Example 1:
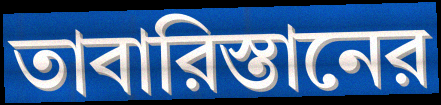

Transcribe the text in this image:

তাবারিস্তানের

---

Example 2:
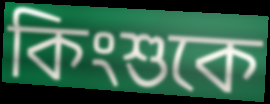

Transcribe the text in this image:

কিংশুকে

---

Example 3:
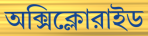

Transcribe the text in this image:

অক্সিক্লোরাইড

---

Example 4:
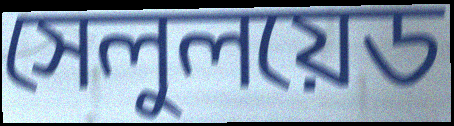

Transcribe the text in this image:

সেলুলয়েড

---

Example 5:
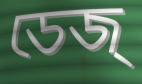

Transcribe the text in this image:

ডেজ্